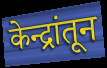
केन्द्रांतून